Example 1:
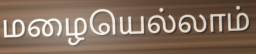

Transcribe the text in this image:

மழையெல்லாம்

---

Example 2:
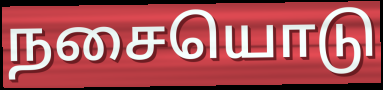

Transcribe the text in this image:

நசையொடு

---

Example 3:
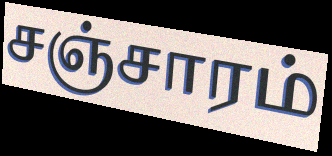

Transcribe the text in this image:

சஞ்சாரம்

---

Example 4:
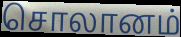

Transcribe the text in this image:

சொலானம்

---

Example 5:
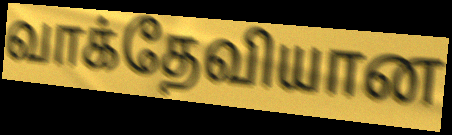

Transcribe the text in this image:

வாக்தேவியான